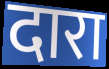
दारा